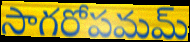
సాగరోపమమ్